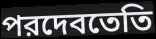
পরদেবতেতি